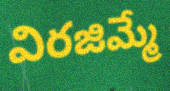
విరజిమ్మే